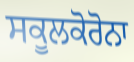
ਸਕੂਲਕੋਰੋਨਾ